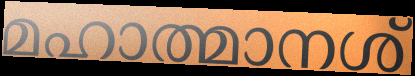
മഹാത്മാനശ്